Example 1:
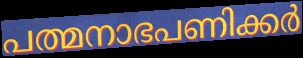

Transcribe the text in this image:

പത്മനാഭപണിക്കർ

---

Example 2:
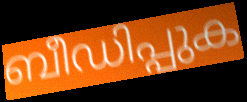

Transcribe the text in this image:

ബീഡിപ്പുക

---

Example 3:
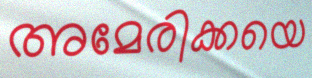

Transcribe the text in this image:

അമേരിക്കയെ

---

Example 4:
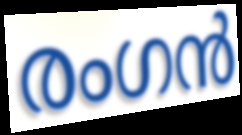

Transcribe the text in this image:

രംഗൻ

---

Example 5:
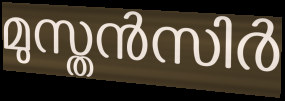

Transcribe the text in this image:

മുസ്തൻസിർ